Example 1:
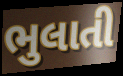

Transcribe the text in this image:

ભુલાતી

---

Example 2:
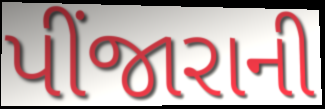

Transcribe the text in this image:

પીંજારાની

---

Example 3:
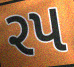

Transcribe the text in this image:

રપ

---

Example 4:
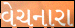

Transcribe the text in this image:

વેચનારા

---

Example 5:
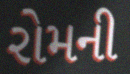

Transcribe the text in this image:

રોમની